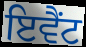
ਇਵੈਂਟ